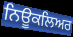
ਨਿਊਕਲਿਅਰ